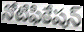
నోటిఫికేషన్